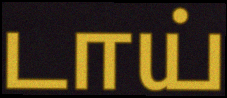
டாய்